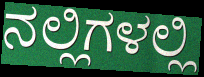
ನಲ್ಲಿಗಳಲ್ಲಿ